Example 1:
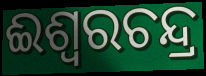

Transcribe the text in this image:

ଈଶ୍ୱରଚନ୍ଦ୍ର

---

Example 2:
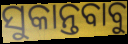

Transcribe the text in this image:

ସୁକାନ୍ତବାବୁ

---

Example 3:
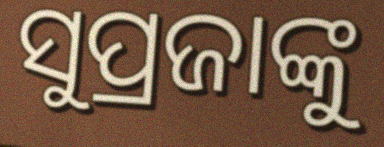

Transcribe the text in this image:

ସୁପ୍ରଜାଙ୍କୁ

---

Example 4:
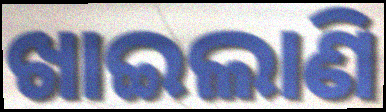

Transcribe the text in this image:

ଖାଇଲାଣି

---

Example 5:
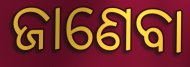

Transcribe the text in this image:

ଜାଣେବା